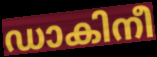
ഡാകിനീ